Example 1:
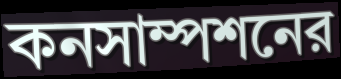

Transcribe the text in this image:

কনসাম্পশনের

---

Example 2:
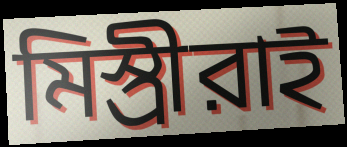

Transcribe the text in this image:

মিস্ত্রীরাই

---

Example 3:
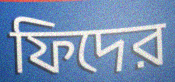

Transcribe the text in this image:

ফিদের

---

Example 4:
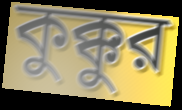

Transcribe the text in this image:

কুক্কুর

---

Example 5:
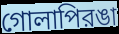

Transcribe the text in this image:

গোলাপিরঙা